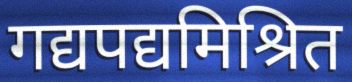
गद्यपद्यमिश्रित